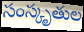
సంస్కృతుల